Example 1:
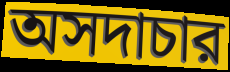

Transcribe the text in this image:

অসদাচার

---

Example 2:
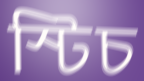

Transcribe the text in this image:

স্টিচ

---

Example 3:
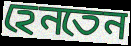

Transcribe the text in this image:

হেনতেন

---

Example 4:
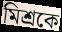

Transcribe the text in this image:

মিশ্রকে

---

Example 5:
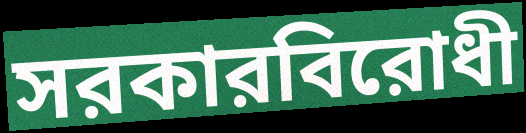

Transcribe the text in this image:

সরকারবিরোধী